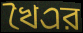
খৈএর